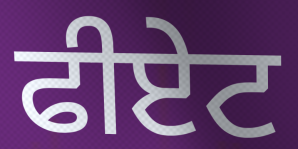
ਫੀਏਟ